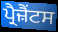
ਪ੍ਰੈਜ਼ੈਂਟਸ